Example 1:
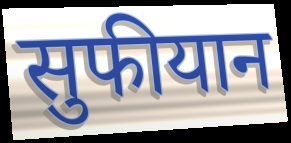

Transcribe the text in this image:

सुफीयान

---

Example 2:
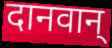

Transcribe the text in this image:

दानवान्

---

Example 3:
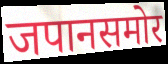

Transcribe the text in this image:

जपानसमोर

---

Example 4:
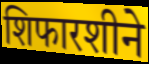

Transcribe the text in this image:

शिफारशीने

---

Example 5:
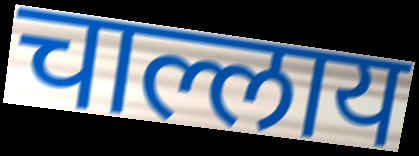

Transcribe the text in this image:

चाल्लाय